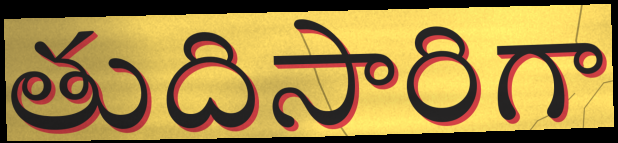
తుదిసారిగా